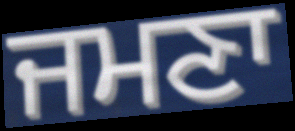
ਜਮਣਾ